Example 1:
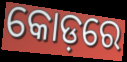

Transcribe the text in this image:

କୋଡ଼ରେ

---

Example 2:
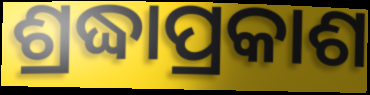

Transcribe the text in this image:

ଶ୍ରଦ୍ଧାପ୍ରକାଶ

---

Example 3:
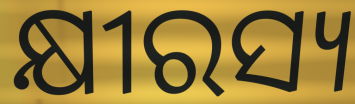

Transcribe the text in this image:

କ୍ଷୀରସ୍ୟ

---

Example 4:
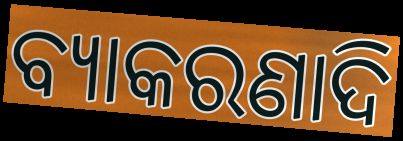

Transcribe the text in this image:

ବ୍ୟାକରଣାଦି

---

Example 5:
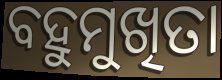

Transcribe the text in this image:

ବହୁମୁଖିତା